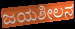
ಜಯಶೀಲನ